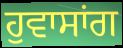
ਹੁਵਾਸਾਂਗ